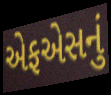
એફએસનું